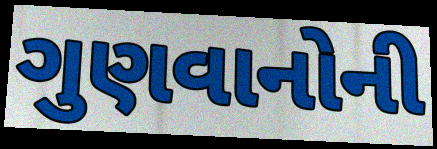
ગુણવાનોની